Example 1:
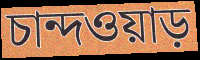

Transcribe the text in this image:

চান্দওয়াড়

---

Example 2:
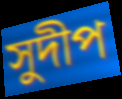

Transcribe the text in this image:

সুদীপ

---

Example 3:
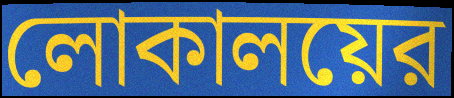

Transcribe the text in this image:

লোকালয়ের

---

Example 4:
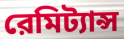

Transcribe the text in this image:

রেমিট্যান্স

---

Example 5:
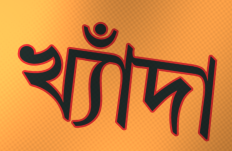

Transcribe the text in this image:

খ্যাঁদা